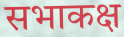
सभाकक्ष